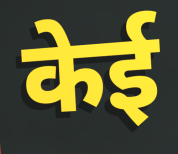
केई